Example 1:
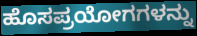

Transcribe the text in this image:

ಹೊಸಪ್ರಯೋಗಗಳನ್ನು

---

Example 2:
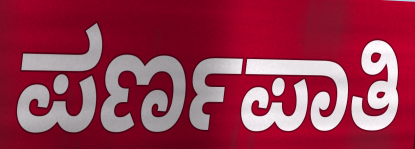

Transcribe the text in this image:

ಪರ್ಣಪಾತಿ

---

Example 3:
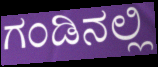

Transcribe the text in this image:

ಗಂಡಿನಲ್ಲಿ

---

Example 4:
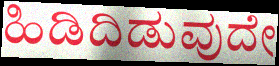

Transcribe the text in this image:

ಹಿಡಿದಿಡುವುದೇ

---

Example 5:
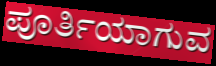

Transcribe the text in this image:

ಪೂರ್ತಿಯಾಗುವ